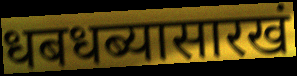
धबधब्यासारखं